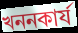
খননকাৰ্য